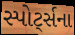
સ્પોર્ટ્સના